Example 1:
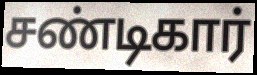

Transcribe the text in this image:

சண்டிகார்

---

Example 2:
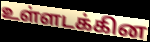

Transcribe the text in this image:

உள்ளடக்கின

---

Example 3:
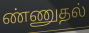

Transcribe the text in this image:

ண்ணுதல்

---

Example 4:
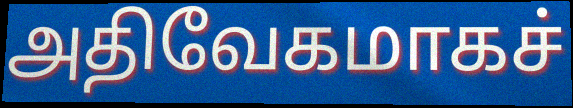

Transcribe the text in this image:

அதிவேகமாகச்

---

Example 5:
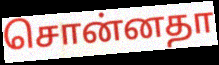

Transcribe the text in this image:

சொன்னதா